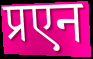
प्रएन